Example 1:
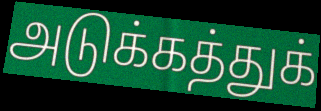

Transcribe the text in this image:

அடுக்கத்துக்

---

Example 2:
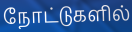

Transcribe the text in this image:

நோட்டுகளில்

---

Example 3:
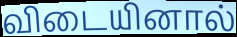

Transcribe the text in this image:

விடையினால்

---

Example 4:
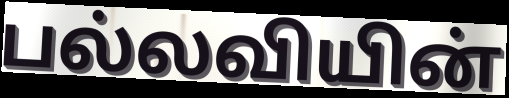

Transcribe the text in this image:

பல்லவியின்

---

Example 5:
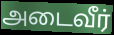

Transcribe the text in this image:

அடைவீர்